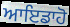
ਆਇਡਾਹੋ